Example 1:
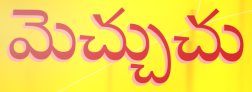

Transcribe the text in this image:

మెచ్చుచు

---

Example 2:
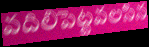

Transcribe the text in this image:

వదిలిపెట్టవలసిన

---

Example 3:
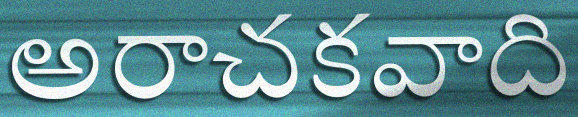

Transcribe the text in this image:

అరాచకవాది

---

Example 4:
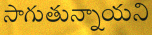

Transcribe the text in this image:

సాగుతున్నాయని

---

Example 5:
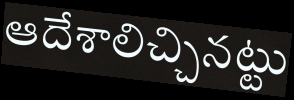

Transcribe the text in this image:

ఆదేశాలిచ్చినట్టు